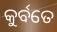
କୁର୍ବତେ